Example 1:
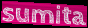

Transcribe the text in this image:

sumita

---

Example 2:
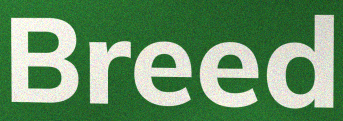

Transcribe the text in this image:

Breed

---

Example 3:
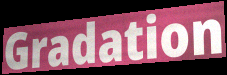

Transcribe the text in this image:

Gradation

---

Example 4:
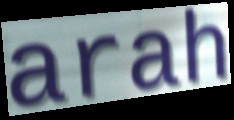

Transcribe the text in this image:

arah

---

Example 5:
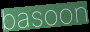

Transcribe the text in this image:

basoon